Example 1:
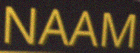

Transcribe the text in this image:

NAAM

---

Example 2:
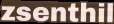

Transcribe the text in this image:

zsenthil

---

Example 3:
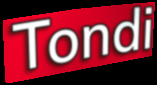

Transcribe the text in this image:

Tondi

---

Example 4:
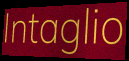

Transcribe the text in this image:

Intaglio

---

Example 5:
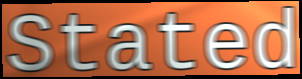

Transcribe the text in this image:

Stated